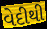
વેદીથી